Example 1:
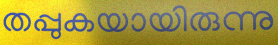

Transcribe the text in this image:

തപ്പുകയായിരുന്നു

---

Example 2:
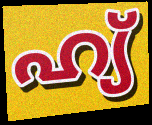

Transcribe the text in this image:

ഹ്യ്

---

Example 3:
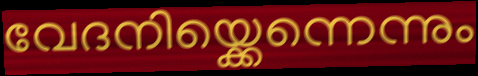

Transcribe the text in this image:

വേദനിയ്ക്കെന്നെന്നും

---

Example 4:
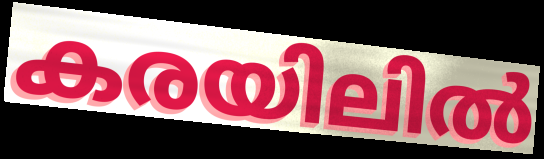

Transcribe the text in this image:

കരയിലിൽ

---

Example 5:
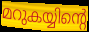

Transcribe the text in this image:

മറുകയ്യിന്റെ